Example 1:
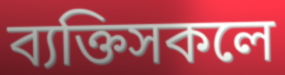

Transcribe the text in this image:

ব্যক্তিসকলে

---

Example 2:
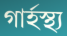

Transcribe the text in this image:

গাৰ্হস্থ্য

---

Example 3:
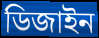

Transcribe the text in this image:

ডিজাইন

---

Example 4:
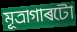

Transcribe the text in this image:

মূত্ৰাগাৰটো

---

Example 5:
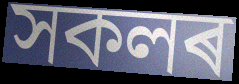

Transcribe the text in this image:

সকলৰ